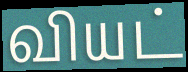
வியட்